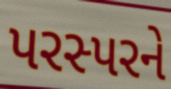
પરસ્પરને